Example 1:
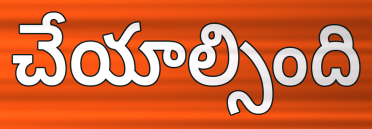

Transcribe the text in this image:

చేయాల్సింది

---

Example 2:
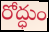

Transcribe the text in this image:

రోద్ధుం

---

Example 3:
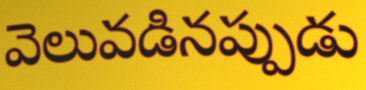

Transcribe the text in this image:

వెలువడినప్పుడు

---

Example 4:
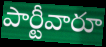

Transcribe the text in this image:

పార్టీవారూ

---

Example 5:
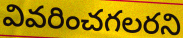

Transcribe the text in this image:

వివరించగలరని